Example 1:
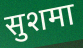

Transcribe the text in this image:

सुशमा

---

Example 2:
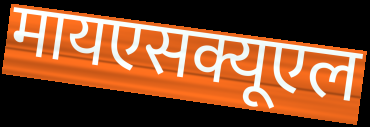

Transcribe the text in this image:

मायएसक्यूएल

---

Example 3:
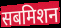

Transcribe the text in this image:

सबमिशन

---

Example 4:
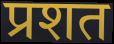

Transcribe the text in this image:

प्रशत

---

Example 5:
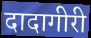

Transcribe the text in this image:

दादागीरी